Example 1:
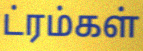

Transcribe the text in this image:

ட்ரம்கள்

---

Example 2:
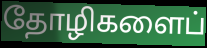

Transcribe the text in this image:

தோழிகளைப்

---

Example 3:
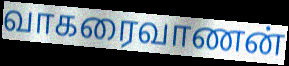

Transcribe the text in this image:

வாகரைவாணன்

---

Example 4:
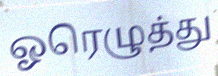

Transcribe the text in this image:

ஓரெழுத்து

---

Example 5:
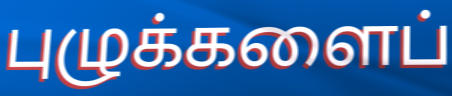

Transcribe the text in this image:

புழுக்களைப்